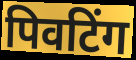
पिवटिंग